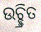
ଉଚ୍ଛ୍ରିତ